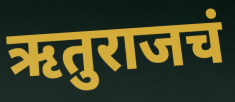
ऋतुराजचं